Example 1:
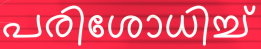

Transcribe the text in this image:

പരിശോധിച്ച്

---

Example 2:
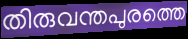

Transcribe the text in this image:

തിരുവന്തപുരത്തെ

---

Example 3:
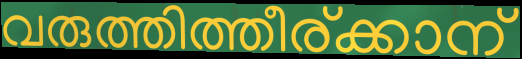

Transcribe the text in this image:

വരുത്തിത്തീര്ക്കാന്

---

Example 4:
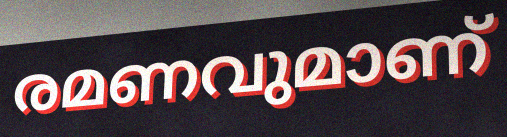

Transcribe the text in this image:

രമണവുമാണ്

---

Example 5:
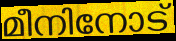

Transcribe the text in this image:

മീനിനോട്